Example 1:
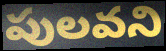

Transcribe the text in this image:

పులవని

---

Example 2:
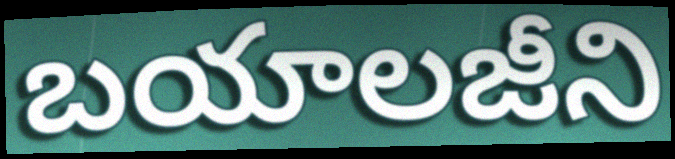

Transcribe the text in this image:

బయాలజీని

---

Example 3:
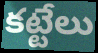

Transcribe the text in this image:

కట్టేలు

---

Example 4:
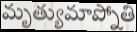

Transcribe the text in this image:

మృత్యుమాప్నోతి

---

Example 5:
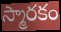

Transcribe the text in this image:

స్మారకం